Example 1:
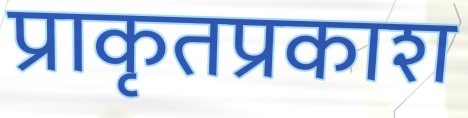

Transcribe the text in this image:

प्राकृतप्रकाश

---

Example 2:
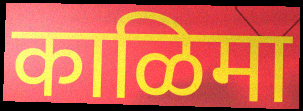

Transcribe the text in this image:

काळिमा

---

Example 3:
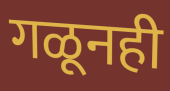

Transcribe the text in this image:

गळूनही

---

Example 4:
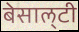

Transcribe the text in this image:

बेसाल्टी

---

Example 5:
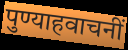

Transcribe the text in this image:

पुण्याहवाचनीं